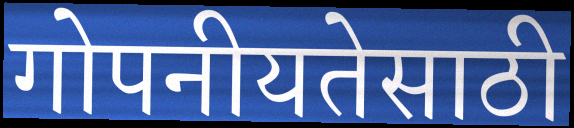
गोपनीयतेसाठी